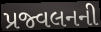
પ્રજ્વલનની